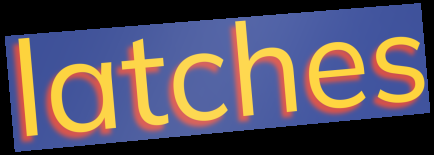
latches